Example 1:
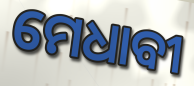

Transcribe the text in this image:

ମେଧାବୀ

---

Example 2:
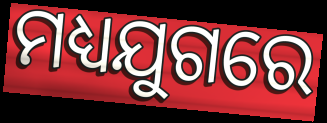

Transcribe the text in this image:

ମଧ୍ୟଯୁଗରେ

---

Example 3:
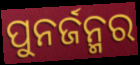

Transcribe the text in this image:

ପୁନର୍ଜନ୍ମର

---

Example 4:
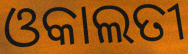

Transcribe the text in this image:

ଓକାଲତୀ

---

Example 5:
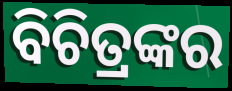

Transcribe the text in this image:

ବିଚିତ୍ରଙ୍କର